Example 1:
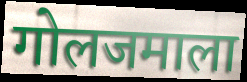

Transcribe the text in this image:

गोलजमाला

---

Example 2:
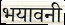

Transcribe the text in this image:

भयावनी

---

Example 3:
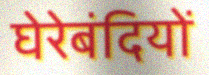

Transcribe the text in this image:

घेरेबंदियों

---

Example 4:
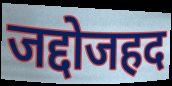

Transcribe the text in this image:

जद्दोजहद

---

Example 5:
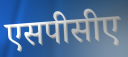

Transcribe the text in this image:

एसपीसीए